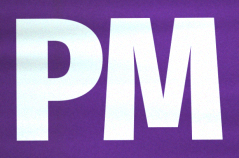
PM